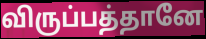
விருப்பத்தானே